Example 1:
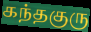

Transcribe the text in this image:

கந்தகுரு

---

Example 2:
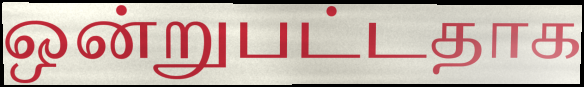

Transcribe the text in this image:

ஒன்றுபட்டதாக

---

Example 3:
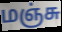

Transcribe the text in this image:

மஞ்சு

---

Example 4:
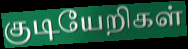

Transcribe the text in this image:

குடியேறிகள்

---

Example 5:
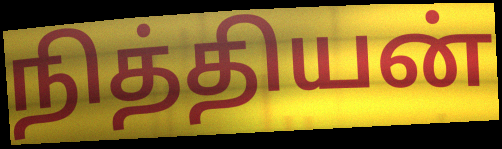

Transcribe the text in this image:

நித்தியன்